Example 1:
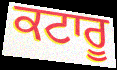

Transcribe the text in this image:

ਕਟਾਰੂ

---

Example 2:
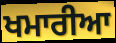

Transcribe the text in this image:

ਖਮਾਰੀਆ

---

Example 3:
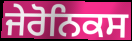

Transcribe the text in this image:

ਜੇਰੋਨਿਕਸ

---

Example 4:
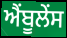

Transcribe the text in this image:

ਐਂਬੂਲੇਂਸ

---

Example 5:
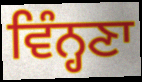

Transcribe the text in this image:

ਵਿੰਨ੍ਹਣਾ